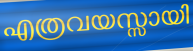
എത്രവയസ്സായി